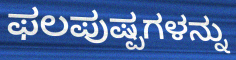
ಫಲಪುಷ್ಪಗಳನ್ನು